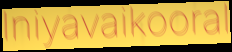
Iniyavaikooral